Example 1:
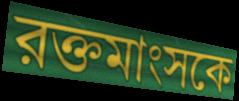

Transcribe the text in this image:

রক্তমাংসকে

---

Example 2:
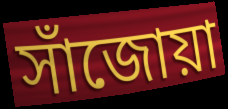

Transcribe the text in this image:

সাঁজোয়া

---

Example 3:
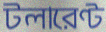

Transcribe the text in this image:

টলারেণ্ট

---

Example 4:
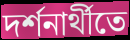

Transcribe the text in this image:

দর্শনার্থীতে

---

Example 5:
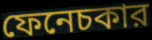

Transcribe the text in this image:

ফেনেচকার